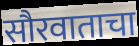
सौरवाताचा